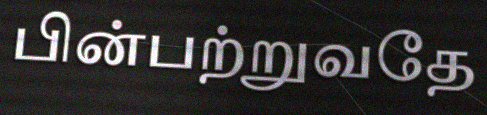
பின்பற்றுவதே